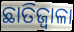
ଛାତିଜ୍ୱାଳା